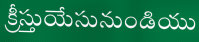
క్రీస్తుయేసునుండియు